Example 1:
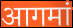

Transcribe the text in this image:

आगमां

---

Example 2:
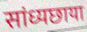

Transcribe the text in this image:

सांध्यछाया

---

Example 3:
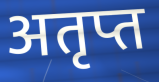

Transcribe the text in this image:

अतृप्त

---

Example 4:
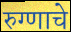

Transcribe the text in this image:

रुग्णाचे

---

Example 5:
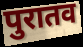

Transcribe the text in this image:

पुरातव